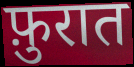
फ़ुरात